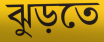
ঝুড়তে